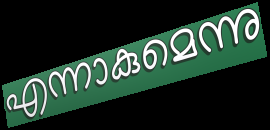
എന്നാകുമെന്നു